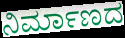
ನಿರ್ಮಾಣದ